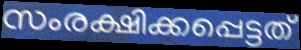
സംരക്ഷിക്കപ്പെട്ടത്